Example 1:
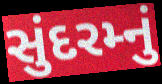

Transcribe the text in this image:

સુંદરમ્નું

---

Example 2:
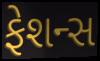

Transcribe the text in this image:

ફેશન્સ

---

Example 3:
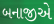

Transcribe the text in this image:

બનાજીએ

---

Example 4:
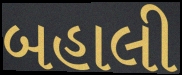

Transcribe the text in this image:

બહાલી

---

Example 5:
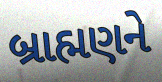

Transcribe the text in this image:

બ્રાહ્મણને